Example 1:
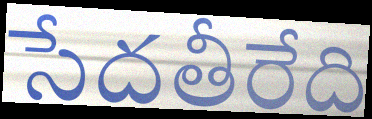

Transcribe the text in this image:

సేదతీరేది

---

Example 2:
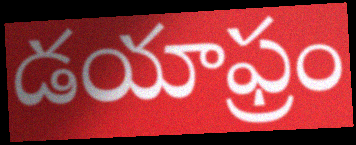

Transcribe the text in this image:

డయాఫ్రం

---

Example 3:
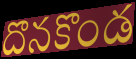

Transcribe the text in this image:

దొనకొండ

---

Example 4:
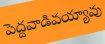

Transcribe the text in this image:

పెద్దవాడివయ్యావు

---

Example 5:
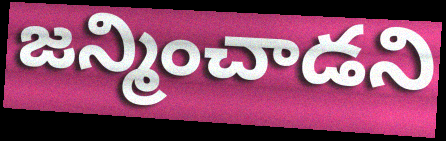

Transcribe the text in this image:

జన్మించాడని